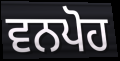
ਵਨਪੋਹ